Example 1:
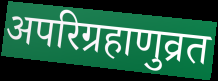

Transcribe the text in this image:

अपरिग्रहाणुव्रत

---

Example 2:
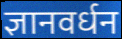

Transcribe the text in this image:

ज्ञानवर्धन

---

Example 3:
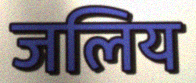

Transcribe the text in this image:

जलिय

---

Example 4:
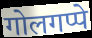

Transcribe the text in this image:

गोलगप्पे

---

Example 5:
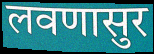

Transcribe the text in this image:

लवणासुर